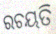
ରଚୟତି